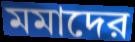
মমাদের